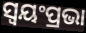
ସ୍ଵୟଂପ୍ରଭା